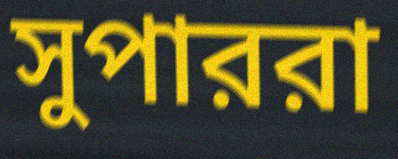
সুপাররা